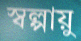
স্বল্পায়ু